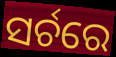
ସର୍ଚରେ